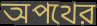
অপথের